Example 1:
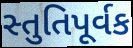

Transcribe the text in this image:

સ્તુતિપૂર્વક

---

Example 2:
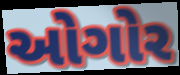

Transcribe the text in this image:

ઓગોર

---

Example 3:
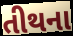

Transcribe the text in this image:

તીથના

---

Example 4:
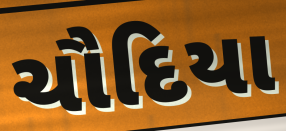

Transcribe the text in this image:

ચૌદિયા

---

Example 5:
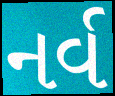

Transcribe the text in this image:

નર્વ